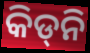
କିଡ୍‌ନି